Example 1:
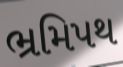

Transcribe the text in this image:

ભ્રમિપથ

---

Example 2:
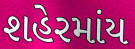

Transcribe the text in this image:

શહેરમાંય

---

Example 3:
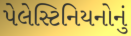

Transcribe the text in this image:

પેલેસ્ટિનિયનોનું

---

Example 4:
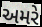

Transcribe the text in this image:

અમરે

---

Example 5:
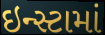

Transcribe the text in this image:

ઇન્સ્ટામાં